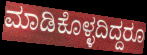
ಮಾಡಿಕೊಳ್ಳದಿದ್ದರೂ